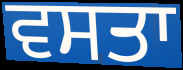
ਵਸਤਾ